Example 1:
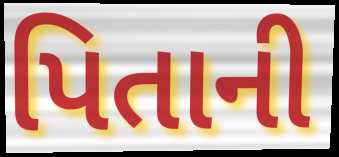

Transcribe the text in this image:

પિતાની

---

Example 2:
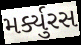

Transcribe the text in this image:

મર્ક્યુરસ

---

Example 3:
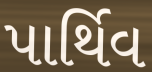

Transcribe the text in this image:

પાર્થિવ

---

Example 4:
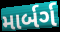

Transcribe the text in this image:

માર્બર્ગ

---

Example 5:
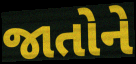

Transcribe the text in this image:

જાતોને